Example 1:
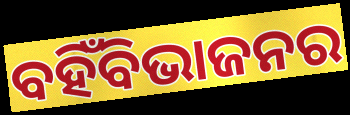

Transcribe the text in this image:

ବହିଁବିଭାଜନର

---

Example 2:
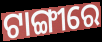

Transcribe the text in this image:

ଟାଙ୍ଗୀରେ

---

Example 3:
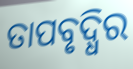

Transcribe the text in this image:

ତାପବୃଦ୍ଧିର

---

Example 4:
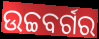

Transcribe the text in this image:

ଉଚ୍ଚବର୍ଗର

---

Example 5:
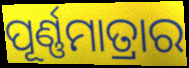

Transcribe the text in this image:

ପୂର୍ଣ୍ଣମାତ୍ରାର